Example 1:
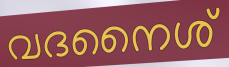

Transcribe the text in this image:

വദനൈശ്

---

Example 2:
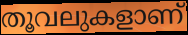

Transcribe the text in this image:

തൂവലുകളാണ്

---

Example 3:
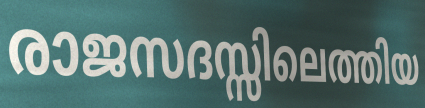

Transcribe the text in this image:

രാജസദസ്സിലെത്തിയ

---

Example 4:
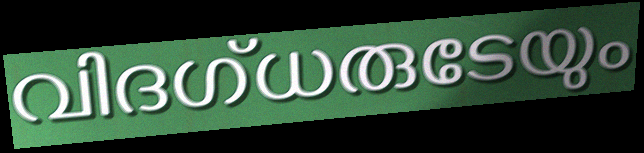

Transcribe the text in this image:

വിദഗ്ധരുടേയും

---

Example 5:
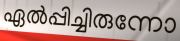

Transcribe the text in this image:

ഏൽപ്പിച്ചിരുന്നോ